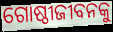
ଗୋଷ୍ଠୀଜୀବନକୁ